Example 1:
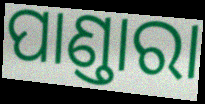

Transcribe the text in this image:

ପାଣ୍ଡାରା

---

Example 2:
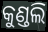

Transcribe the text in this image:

କୁଣ୍ଡଲି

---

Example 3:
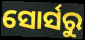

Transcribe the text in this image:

ସୋର୍ସରୁ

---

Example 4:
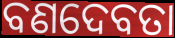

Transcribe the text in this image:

ବଣଦେବତା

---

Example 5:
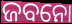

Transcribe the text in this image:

ଜବନୋ